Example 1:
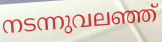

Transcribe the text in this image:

നടന്നുവലഞ്ഞ്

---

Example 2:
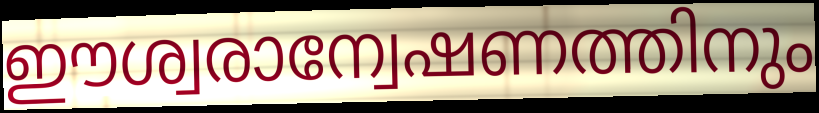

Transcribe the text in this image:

ഈശ്വരാന്വേഷണത്തിനും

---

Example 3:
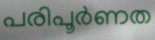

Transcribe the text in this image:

പരിപൂർണത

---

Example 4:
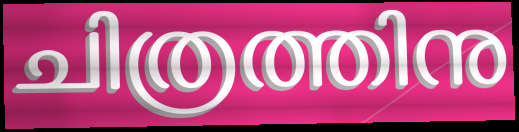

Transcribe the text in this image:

ചിത്രത്തിനു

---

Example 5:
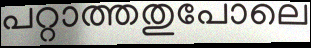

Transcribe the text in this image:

പറ്റാത്തതുപോലെ